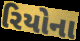
રિયોના